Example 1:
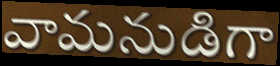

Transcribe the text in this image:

వామనుడిగా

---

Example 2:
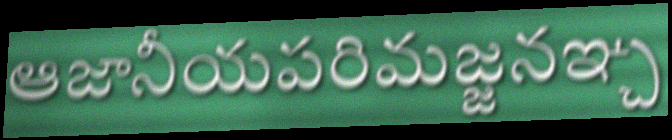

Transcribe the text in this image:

ఆజానీయపరిమజ్జనఞ్చ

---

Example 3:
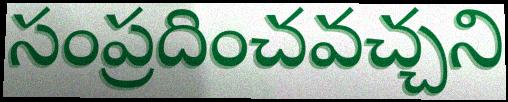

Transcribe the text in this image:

సంప్రదించవచ్చని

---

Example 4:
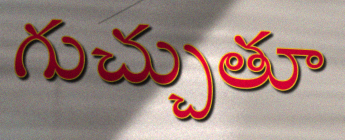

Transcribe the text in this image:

గుచ్చుతూ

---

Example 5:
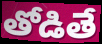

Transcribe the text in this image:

తోడితే